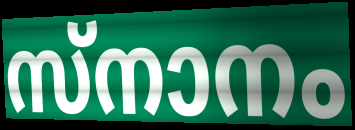
സ്നാനം